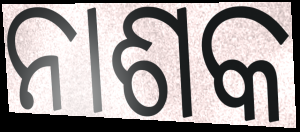
ନାଶକ